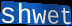
shwet